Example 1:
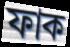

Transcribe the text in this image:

ফাক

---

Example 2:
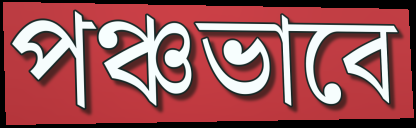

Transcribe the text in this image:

পঞ্চভাবে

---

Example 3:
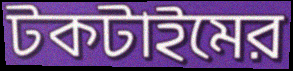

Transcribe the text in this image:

টকটাইমের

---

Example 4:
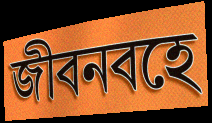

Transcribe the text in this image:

জীবনবহে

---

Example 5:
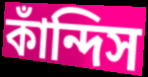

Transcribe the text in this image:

কাঁন্দিস